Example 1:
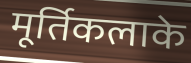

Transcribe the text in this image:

मूर्तिकलाके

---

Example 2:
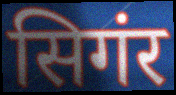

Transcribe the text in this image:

सिगंर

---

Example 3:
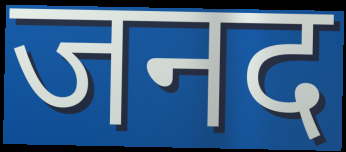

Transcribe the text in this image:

जनद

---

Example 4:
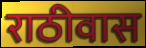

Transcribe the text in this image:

राठीवास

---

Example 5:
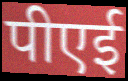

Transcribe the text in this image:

पीएई